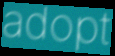
adopt